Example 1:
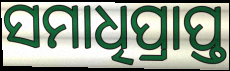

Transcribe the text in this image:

ସମାଧିପ୍ରାପ୍ତ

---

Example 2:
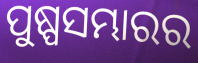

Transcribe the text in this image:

ପୁଷ୍ପସମ୍ଭାରର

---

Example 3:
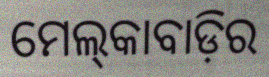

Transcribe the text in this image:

ମେଲ୍‍କାବାଡ଼ିର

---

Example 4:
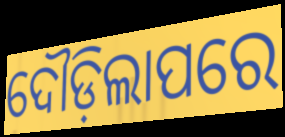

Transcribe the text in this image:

ଦୌଡ଼ିଲାପରେ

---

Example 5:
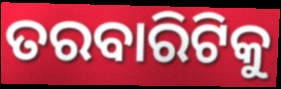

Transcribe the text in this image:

ତରବାରିଟିକୁ